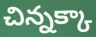
చిన్నక్కా